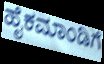
ಹೈಕಮಾಂಡಿಗೆ